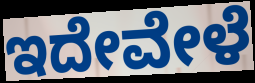
ಇದೇವೇಳೆ